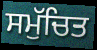
ਸਮੁੱਚਿਤ